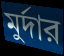
মুর্দার